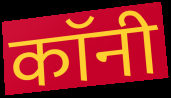
कॉनी